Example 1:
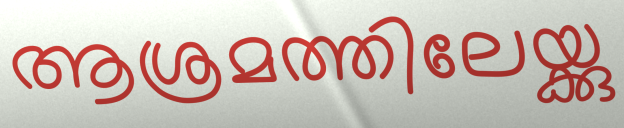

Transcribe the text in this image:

ആശ്രമത്തിലേയ്ക്കു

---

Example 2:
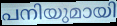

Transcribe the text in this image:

പനിയുമായി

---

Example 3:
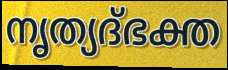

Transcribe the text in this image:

നൃത്യദ്ഭക്ത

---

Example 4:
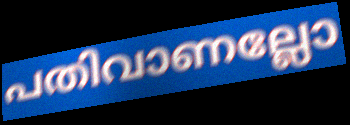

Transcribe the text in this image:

പതിവാണല്ലോ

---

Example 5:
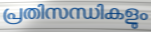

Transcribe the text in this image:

പ്രതിസന്ധികളും